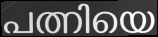
പത്നിയെ